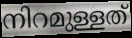
നിറമുള്ളത്